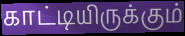
காட்டியிருக்கும்